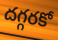
దగ్గరకో